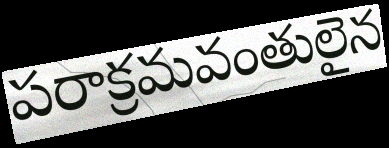
పరాక్రమవంతులైన